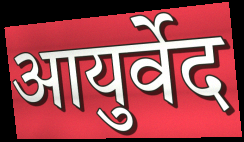
आयुर्वेद